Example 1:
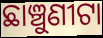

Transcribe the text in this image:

ଛାଞ୍ଚୁଣୀଟା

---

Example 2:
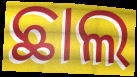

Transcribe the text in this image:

ଛାଲ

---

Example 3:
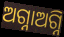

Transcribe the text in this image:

ଅଗ୍ନାଅଗ୍ନି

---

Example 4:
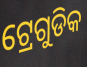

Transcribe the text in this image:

ଟ୍ରେଗୁଡିକ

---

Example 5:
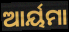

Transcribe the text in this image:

ଆର୍ୟମା